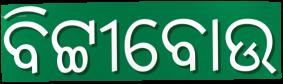
ବିଟ୍ଟୀବୋଉ